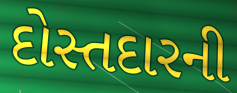
દોસ્તદારની